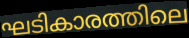
ഘടികാരത്തിലെ